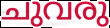
ചുവരു